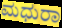
ಮಧುರಾ